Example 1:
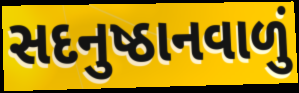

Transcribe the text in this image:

સદનુષ્ઠાનવાળું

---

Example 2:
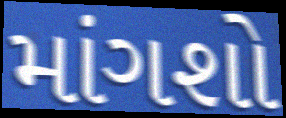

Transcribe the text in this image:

માંગશો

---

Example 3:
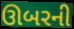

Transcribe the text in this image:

ઊબરની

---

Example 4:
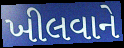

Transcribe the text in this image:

ખીલવાને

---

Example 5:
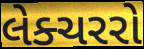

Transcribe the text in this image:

લેક્ચરરો